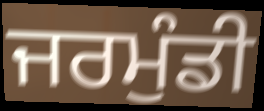
ਜਰਮੁੰਡੀ